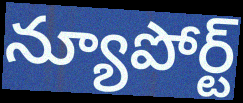
న్యూపోర్ట్